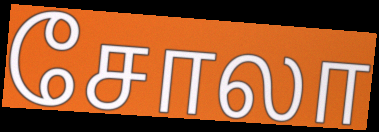
சோலா